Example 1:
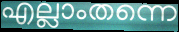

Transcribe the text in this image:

എല്ലാംതന്നെ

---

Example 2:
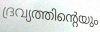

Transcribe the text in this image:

ദ്രവ്യത്തിന്റെയും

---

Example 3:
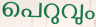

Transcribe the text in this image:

പെറുവും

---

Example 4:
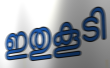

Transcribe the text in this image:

ഇതുകൂടി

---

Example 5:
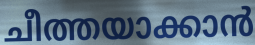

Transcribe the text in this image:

ചീത്തയാക്കാൻ